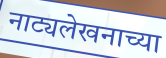
नाट्यलेखनाच्या